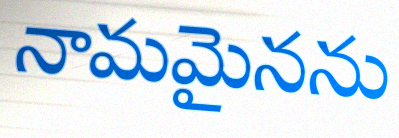
నామమైనను